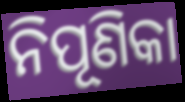
ନିପୂଣିକା